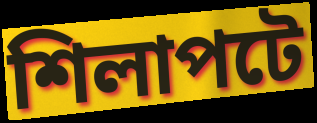
শিলাপটে